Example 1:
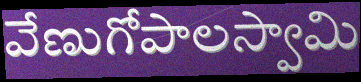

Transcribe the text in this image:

వేణుగోపాలస్వామి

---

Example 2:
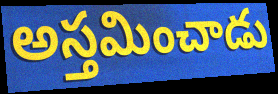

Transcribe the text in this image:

అస్తమించాడు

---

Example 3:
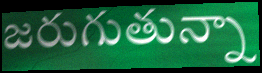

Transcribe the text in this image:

జరుగుతున్నా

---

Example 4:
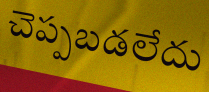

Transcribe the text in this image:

చెప్పబడలేదు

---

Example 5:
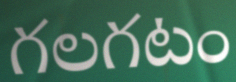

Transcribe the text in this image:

గలగటం